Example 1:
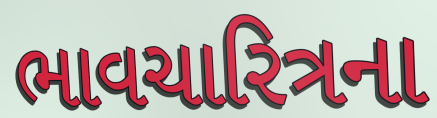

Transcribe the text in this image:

ભાવચારિત્રના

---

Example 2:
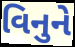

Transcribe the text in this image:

વિનુને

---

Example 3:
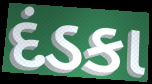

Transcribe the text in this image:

દંડકા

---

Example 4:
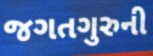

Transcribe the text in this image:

જગતગુરુની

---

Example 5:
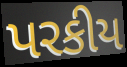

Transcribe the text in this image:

પરકીય